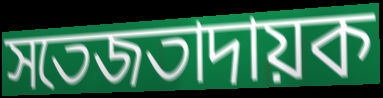
সতেজতাদায়ক